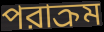
পরাক্রম